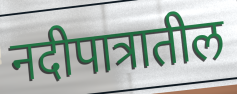
नदीपात्रातील